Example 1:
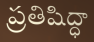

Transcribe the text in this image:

ప్రతిషిద్ధా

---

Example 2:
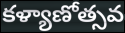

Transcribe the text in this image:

కళ్యాణోత్సవ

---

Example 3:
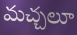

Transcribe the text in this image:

మచ్చలూ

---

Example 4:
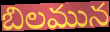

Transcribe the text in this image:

బిలమున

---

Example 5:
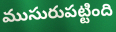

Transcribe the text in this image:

ముసురుపట్టింది